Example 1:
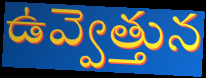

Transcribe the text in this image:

ఉవ్వెత్తున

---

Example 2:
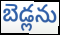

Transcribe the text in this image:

బెడ్లను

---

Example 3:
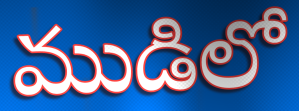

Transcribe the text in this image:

ముడిలో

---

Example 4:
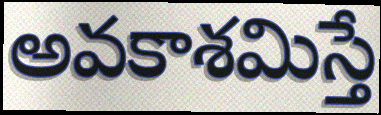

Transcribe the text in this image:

అవకాశమిస్తే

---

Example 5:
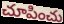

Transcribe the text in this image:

చూపించు